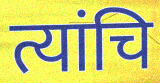
त्यांचि